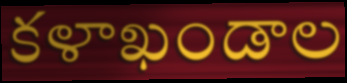
కళాఖండాల